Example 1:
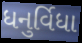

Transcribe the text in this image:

ધનુર્વિધા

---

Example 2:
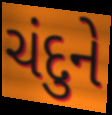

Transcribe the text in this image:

ચંદુને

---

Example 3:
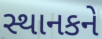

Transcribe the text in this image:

સ્થાનકને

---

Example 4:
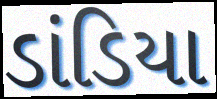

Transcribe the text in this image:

ડાંડિયા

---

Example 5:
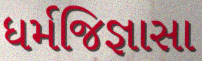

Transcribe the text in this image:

ધર્મજિજ્ઞાસા